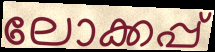
ലോക്കപ്പ്